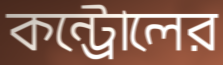
কন্ট্রোলের